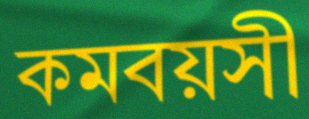
কমবয়সী